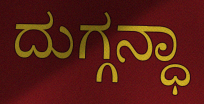
ದುಗ್ಗನ್ಧಾ